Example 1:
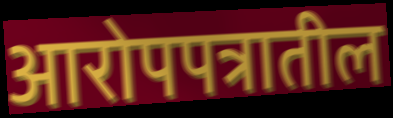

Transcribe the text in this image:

आरोपपत्रातील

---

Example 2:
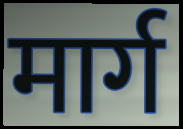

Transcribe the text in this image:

मार्ग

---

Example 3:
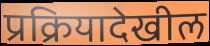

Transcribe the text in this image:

प्रक्रियादेखील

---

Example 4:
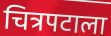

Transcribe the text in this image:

चित्रपटाला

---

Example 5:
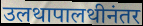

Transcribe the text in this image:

उलथापालथीनंतर